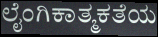
ಲೈಂಗಿಕಾತ್ಮಕತೆಯ